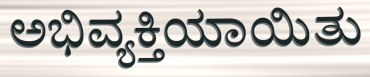
ಅಭಿವ್ಯಕ್ತಿಯಾಯಿತು